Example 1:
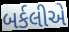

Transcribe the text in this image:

બર્કલીએ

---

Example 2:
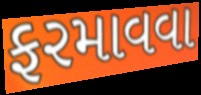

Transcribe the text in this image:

ફરમાવવા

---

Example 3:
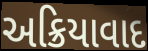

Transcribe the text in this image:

અક્રિયાવાદ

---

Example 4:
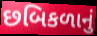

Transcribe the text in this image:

છબિકળાનું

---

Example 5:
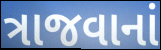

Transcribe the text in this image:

ત્રાજવાનાં